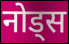
नोड्स